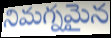
నిమగ్నమైన